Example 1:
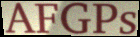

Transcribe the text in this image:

AFGPs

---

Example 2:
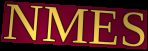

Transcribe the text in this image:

NMES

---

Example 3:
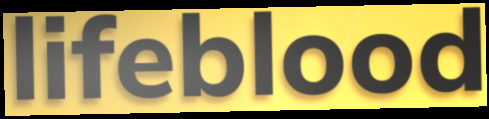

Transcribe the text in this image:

lifeblood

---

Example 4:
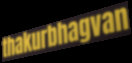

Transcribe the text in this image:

thakurbhagvan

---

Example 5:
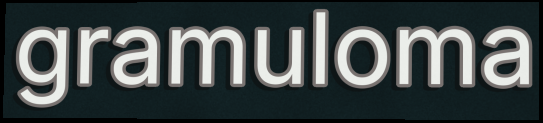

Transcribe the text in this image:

gramuloma